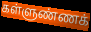
கள்ளுண்ணக்